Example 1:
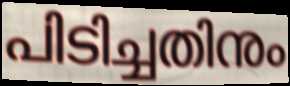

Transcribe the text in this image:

പിടിച്ചതിനും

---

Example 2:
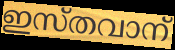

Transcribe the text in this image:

ഇസ്തവാന്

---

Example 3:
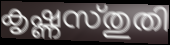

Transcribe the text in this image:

കൃഷ്ണസ്തുതി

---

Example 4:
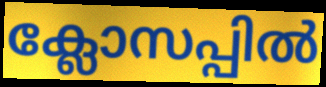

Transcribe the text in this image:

ക്ലോസപ്പിൽ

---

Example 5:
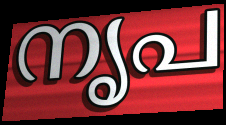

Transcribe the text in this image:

നൃപ